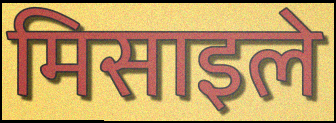
मिसाइले